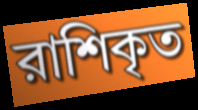
রাশিকৃত